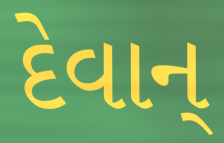
દેવાન્